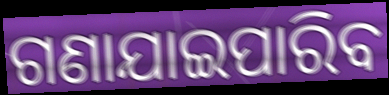
ଗଣାଯାଇପାରିବ